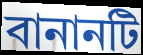
বানানটি